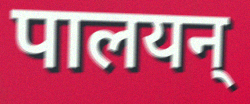
पालयन्